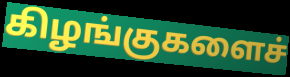
கிழங்குகளைச்